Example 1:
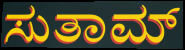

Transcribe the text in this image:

ಸುತಾಮ್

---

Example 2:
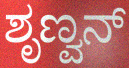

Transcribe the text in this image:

ಶೃಣ್ವನ್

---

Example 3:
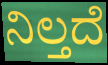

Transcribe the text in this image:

ನಿಲ್ತದೆ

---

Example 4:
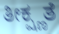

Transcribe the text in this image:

ತೀಕ್ಷ್ಣತೆ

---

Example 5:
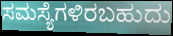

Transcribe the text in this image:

ಸಮಸ್ಯೆಗಳಿರಬಹುದು